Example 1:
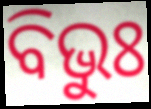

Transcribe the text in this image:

ବିଭୁଃ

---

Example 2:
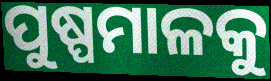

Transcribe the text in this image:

ପୁଷ୍ପମାଳକୁ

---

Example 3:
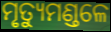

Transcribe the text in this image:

ମୃତ୍ୟୁମଣ୍ଡଳେ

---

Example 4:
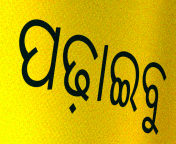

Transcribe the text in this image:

ପଢ଼ାଇବୁ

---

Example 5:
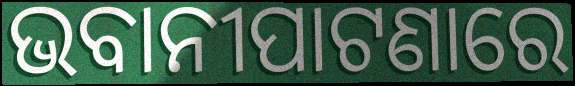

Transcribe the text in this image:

ଭବାନୀପାଟଣାରେ